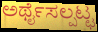
ಅರ್ಥೈಸಲ್ಪಟ್ಟ